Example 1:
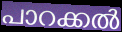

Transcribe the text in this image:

പാറക്കൽ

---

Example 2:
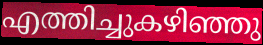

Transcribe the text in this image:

എത്തിച്ചുകഴിഞ്ഞു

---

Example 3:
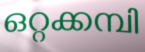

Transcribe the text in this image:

ഒറ്റക്കമ്പി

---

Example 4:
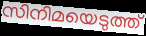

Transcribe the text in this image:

സിനിമയെടുത്ത്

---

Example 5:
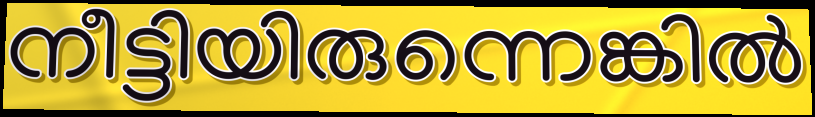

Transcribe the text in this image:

നീട്ടിയിരുന്നെങ്കിൽ